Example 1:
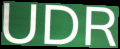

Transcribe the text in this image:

UDR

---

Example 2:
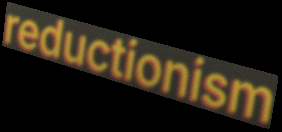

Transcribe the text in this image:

reductionism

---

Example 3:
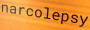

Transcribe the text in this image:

narcolepsy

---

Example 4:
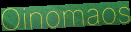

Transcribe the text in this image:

Oinomaos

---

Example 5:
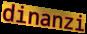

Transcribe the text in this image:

dinanzi